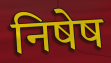
निषेष